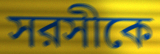
সরসীকে